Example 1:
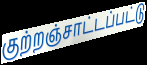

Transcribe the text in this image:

குற்றஞ்சாட்டப்பட்டு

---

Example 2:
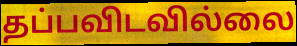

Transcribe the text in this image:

தப்பவிடவில்லை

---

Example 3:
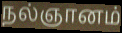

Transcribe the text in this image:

நல்ஞானம்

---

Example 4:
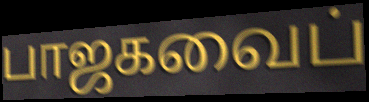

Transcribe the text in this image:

பாஜகவைப்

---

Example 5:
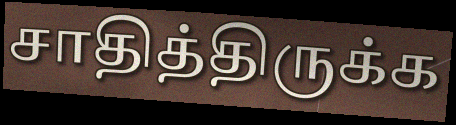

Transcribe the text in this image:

சாதித்திருக்க